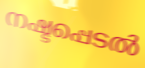
നഷ്ടപ്പെടൽ